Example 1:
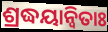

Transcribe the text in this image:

ଶ୍ରଦ୍ଧୟାନ୍ୱିତାଃ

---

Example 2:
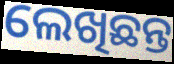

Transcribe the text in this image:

ଲେଖିଛନ୍ତ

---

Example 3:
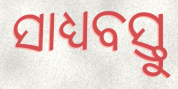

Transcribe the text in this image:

ସାଧ୍ୟବସ୍ତୁ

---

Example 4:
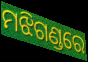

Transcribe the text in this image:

ମଝିଗଣ୍ଡରେ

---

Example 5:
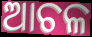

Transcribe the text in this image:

ଆଚଳ